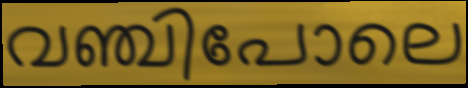
വഞ്ചിപോലെ